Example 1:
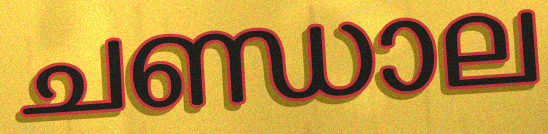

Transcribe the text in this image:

ചണ്ഡാല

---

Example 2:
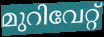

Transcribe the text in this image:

മുറിവേറ്റ്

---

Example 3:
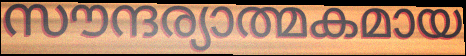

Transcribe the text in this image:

സൗന്ദര്യാത്മകമായ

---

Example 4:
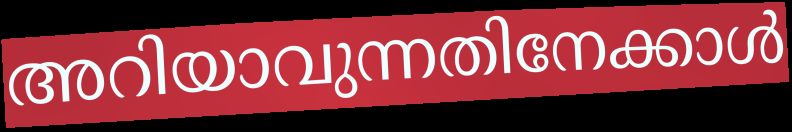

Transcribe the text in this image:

അറിയാവുന്നതിനേക്കാൾ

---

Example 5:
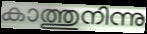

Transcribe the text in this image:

കാത്തുനിന്നു